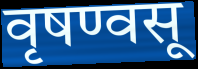
वृषण्वसू